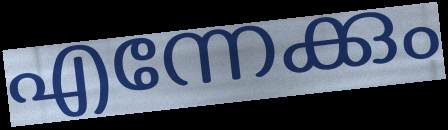
എന്നേക്കും